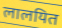
लालयित